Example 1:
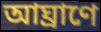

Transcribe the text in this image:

আঘ্রাণে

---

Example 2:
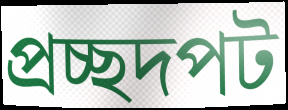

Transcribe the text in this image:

প্রচ্ছদপট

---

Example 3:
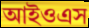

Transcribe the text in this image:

আইওএস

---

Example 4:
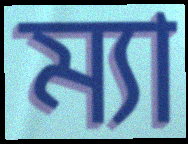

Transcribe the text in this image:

ম্যা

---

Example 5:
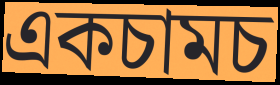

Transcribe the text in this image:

একচামচ